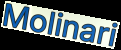
Molinari